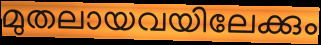
മുതലായവയിലേക്കും